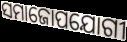
ସମାଜୋପଯୋଗୀ